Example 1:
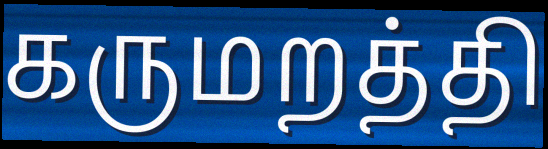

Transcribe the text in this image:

கருமறத்தி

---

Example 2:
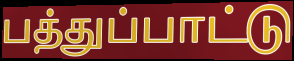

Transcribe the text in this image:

பத்துப்பாட்டு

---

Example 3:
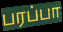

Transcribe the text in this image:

பரப்பா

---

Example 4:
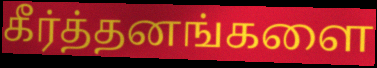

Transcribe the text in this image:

கீர்த்தனங்களை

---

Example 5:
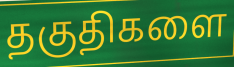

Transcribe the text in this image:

தகுதிகளை